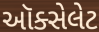
ઑક્સેલેટ